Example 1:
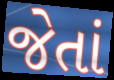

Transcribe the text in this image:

જેતાં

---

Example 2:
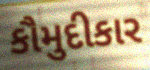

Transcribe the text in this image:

કૌમુદીકાર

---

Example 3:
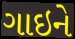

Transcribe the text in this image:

ગાઇને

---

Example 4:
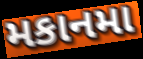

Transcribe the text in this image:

મકાનમા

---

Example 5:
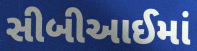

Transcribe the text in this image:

સીબીઆઈમાં